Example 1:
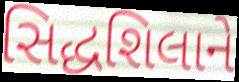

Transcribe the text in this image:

સિદ્ધશિલાને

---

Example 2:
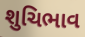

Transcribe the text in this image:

શુચિભાવ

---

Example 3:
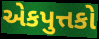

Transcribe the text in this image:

એકપુત્તકો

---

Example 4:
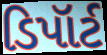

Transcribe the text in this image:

ડિપૉર્ટ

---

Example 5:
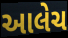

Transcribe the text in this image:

આલેચ